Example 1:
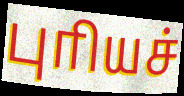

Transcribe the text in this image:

புரியச்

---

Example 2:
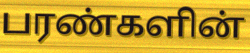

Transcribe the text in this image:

பரண்களின்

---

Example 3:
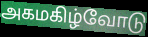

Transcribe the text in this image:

அகமகிழ்வோடு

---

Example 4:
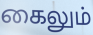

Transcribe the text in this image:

கைலும்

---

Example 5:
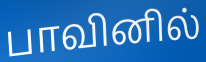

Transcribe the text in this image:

பாவினில்